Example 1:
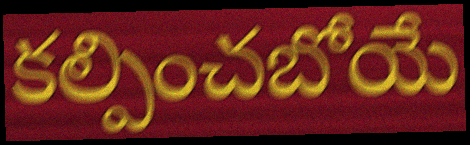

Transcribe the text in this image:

కల్పించబోయే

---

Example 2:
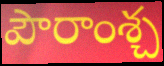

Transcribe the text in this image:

పౌరాంశ్చ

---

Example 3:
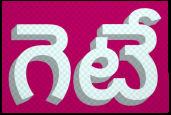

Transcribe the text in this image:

గెటే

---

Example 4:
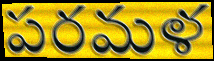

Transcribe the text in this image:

పరమళ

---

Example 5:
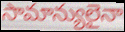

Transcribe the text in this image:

సామాన్యులైనా